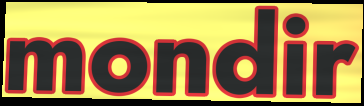
mondir